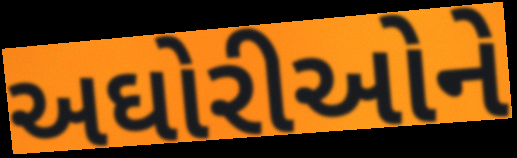
અઘોરીઓને